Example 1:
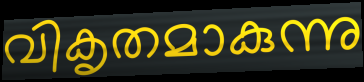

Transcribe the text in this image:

വികൃതമാകുന്നു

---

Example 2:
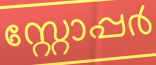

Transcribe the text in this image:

സ്റ്റോപ്പർ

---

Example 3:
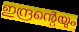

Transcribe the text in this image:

ഇന്ദ്രന്റെയും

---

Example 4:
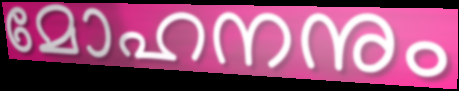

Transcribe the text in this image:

മോഹനനും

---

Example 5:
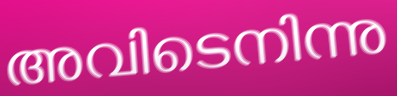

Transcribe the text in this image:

അവിടെനിന്നു